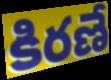
కిరణే